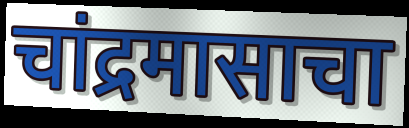
चांद्रमासाचा